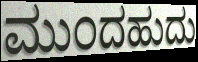
ಮುಂದಹುದು